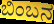
ಬಿಂಬನ